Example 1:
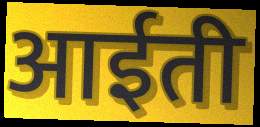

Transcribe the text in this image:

आईती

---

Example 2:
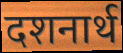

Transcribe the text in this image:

दशनार्थ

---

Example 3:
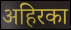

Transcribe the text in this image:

अहिरका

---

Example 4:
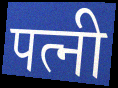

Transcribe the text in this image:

पत्नी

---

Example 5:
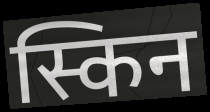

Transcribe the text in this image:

स्किन